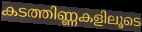
കടത്തിണ്ണകളിലൂടെ